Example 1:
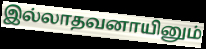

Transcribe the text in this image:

இல்லாதவனாயினும்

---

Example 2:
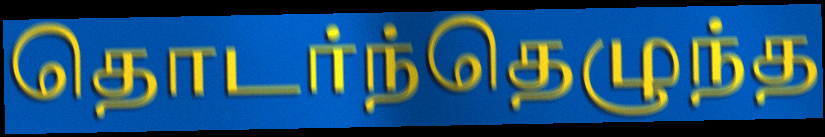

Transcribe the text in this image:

தொடர்ந்தெழுந்த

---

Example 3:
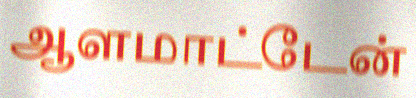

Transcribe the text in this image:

ஆளமாட்டேன்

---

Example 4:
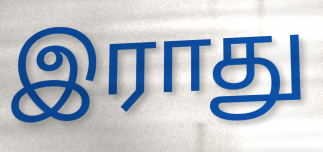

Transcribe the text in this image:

இராது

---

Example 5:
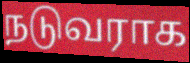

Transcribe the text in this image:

நடுவராக